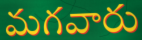
మగవారు